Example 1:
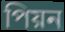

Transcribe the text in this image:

পিয়ন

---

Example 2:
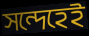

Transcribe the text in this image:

সন্দেহেই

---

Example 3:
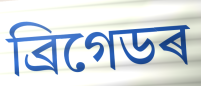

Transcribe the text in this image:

ব্ৰিগেডৰ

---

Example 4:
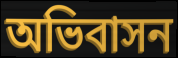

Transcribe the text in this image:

অভিবাসন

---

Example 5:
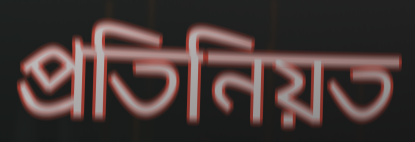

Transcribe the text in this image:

প্ৰতিনিয়ত